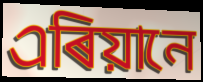
এৰিয়ানে